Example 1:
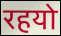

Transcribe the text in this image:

रहयो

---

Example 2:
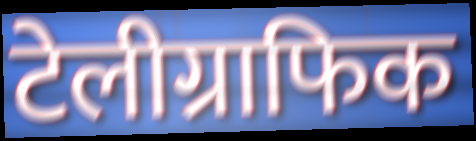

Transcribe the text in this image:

टेलीग्राफिक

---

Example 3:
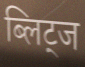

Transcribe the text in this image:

ब्लिट्ज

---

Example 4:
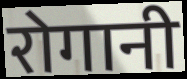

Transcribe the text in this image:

रोगानी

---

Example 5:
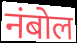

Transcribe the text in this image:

नंबोल